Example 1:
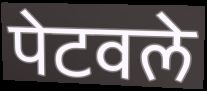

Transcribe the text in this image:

पेटवले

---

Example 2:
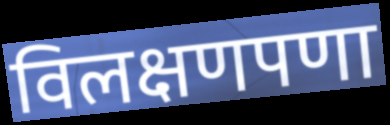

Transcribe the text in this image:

विलक्षणपणा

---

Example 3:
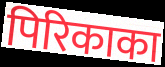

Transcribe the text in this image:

पिरिकाका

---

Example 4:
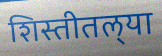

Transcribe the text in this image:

शिस्तीतल्या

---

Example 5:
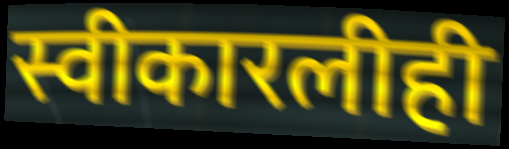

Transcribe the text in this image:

स्वीकारलीही